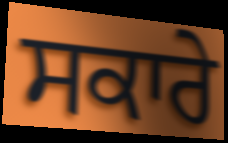
ਸਕਾਰੇ